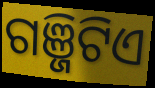
ଗଞ୍ଜିଟିଏ